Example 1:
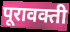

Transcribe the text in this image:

पूरावक्ती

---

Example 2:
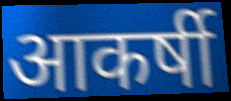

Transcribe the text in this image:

आकर्षी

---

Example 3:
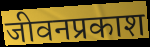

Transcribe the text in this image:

जीवनप्रकाश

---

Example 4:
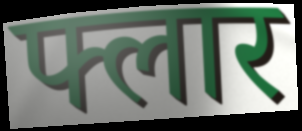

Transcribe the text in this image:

फ्लार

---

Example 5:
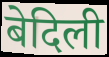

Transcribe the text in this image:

बेदिली